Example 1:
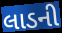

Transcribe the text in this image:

લાડની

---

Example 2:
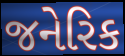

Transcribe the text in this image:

જનેરિક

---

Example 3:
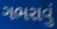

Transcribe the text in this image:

ગભરાવું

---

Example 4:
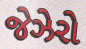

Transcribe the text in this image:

જેઝેરો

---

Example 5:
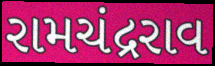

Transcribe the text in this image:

રામચંદ્રરાવ